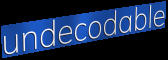
undecodable